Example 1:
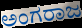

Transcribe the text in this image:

ಅಂಗರಾಜ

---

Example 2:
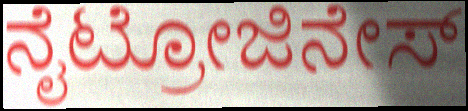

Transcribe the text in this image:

ನೈಟ್ರೋಜಿನೇಸ್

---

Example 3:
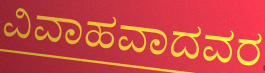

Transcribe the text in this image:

ವಿವಾಹವಾದವರ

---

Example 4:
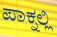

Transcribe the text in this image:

ಪಾಕ್ನಲ್ಲಿ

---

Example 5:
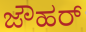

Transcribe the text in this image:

ಜೌಹರ್